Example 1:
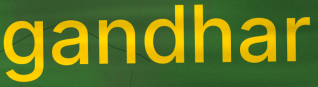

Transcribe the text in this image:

gandhar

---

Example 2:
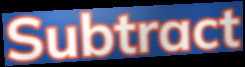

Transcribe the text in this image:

Subtract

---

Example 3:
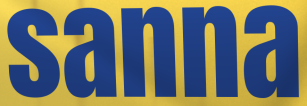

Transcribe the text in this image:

sanna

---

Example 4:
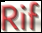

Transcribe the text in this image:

Rif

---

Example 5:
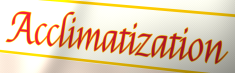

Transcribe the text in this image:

Acclimatization